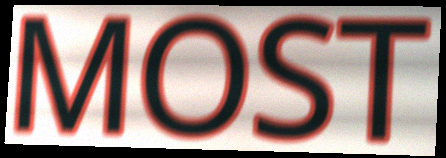
MOST